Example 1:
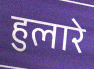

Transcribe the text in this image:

हुलारे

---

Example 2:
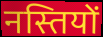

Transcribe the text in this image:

नस्तियों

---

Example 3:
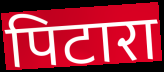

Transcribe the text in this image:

पिटारा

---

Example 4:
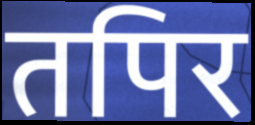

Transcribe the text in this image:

तपिर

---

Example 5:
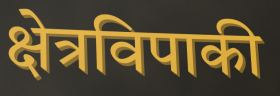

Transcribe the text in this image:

क्षेत्रविपाकी